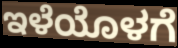
ಇಳೆಯೊಳಗೆ